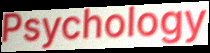
Psychology